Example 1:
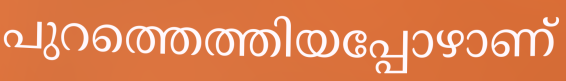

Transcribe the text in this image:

പുറത്തെത്തിയപ്പോഴാണ്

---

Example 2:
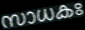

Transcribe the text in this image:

സാധകഃ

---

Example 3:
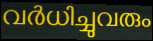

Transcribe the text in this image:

വർധിച്ചുവരും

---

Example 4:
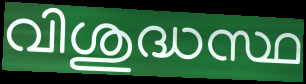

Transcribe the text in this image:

വിശുദ്ധസ്ഥ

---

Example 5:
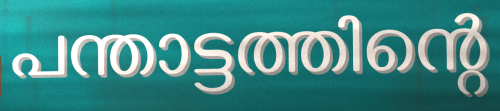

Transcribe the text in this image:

പന്താട്ടത്തിന്റെ